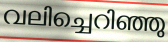
വലിച്ചെറിഞ്ഞു